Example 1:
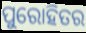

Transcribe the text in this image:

ପୁରୋହିତର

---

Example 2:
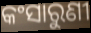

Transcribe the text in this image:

କଂସାରୁଣୀ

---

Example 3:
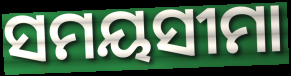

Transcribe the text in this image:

ସମୟସୀମା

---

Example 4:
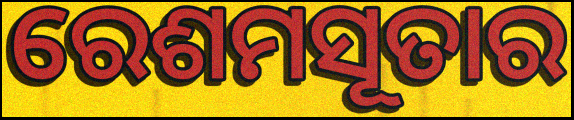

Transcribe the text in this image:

ରେଶମସୂତାର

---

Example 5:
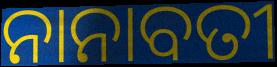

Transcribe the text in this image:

ନାନାବତୀ